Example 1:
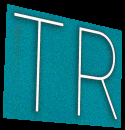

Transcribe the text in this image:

TR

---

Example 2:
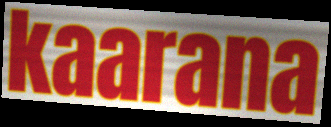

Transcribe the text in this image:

kaarana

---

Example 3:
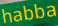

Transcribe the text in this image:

habba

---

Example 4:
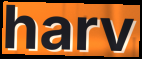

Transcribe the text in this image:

harv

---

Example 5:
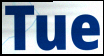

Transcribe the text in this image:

Tue